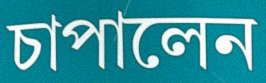
চাপালেন